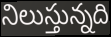
నిలుస్తున్నది